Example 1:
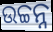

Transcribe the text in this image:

ଉଚ୍ଚନ୍ନ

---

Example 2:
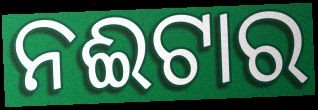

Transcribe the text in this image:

ନଈଟାର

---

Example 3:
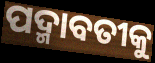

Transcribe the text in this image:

ପଦ୍ମାବତୀକୁ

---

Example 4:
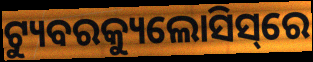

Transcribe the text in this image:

ଟ୍ୟୁବରକ୍ୟୁଲୋସିସ୍‌ରେ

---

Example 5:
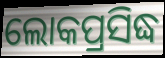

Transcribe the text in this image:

ଲୋକପ୍ରସିଦ୍ଧ